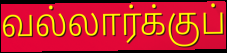
வல்லார்க்குப்